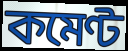
কমেণ্ট